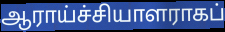
ஆராய்ச்சியாளராகப்